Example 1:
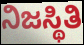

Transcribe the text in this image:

ನಿಜಸ್ಥಿತಿ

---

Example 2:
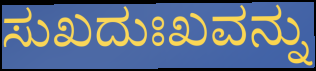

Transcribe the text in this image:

ಸುಖದುಃಖವನ್ನು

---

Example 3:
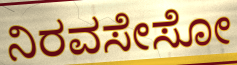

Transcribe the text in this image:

ನಿರವಸೇಸೋ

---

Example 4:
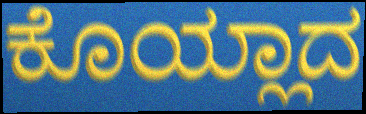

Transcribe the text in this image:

ಕೊಯ್ಲಾದ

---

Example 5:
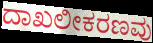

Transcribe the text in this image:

ದಾಖಲೀಕರಣವು